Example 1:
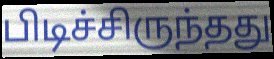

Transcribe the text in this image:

பிடிச்சிருந்தது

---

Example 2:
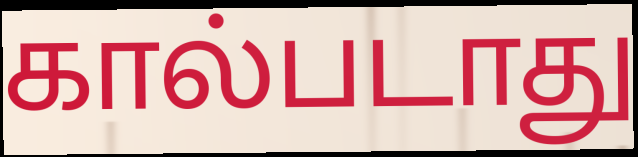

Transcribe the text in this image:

கால்படாது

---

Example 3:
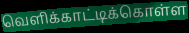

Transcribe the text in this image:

வெளிக்காட்டிக்கொள்ள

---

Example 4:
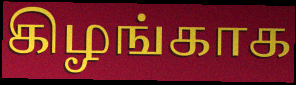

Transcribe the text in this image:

கிழங்காக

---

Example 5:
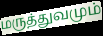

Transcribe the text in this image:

மருத்துவமும்